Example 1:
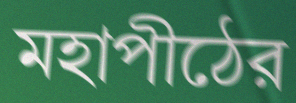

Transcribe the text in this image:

মহাপীঠের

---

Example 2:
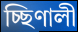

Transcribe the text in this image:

চ্ছিণালী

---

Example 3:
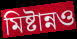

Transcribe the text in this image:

মিষ্টান্নও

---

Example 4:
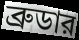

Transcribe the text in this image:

ব্রুডার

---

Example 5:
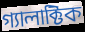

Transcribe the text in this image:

গ্যালাক্টিক